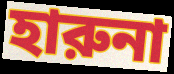
হারুনা